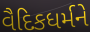
વૈદિકધર્મને